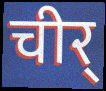
चीर्